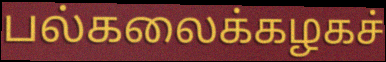
பல்கலைக்கழகச்